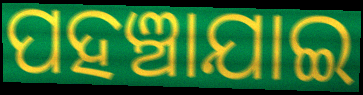
ପହଞ୍ଚାଯାଇ